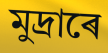
মুদ্ৰাৰে